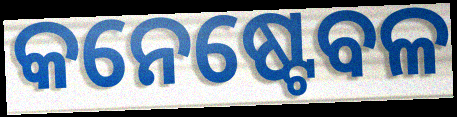
କନେଷ୍ଟେବଳ